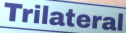
Trilateral